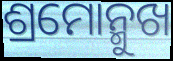
ଶ୍ରମୋନ୍ମୁଖ